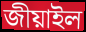
জীয়াইল